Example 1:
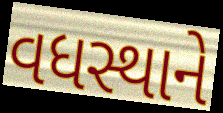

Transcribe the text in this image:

વધસ્થાને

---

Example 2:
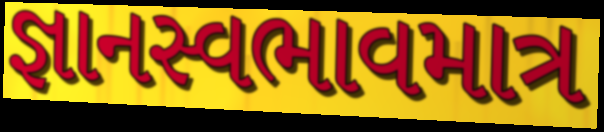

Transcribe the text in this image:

જ્ઞાનસ્વભાવમાત્ર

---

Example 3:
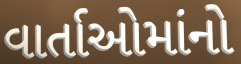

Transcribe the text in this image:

વાર્તાઓમાંનો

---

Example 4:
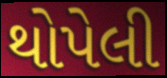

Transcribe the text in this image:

થોપેલી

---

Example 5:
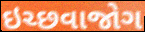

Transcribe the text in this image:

ઇચ્છવાજોગ